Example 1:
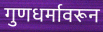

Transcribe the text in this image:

गुणधर्मावरून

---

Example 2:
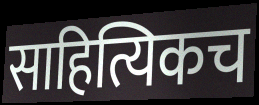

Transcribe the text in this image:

साहित्यिकच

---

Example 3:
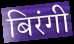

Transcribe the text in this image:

बिरंगी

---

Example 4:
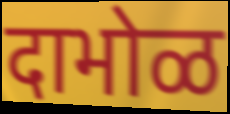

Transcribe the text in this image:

दाभोळ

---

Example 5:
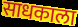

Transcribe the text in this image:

साधकाला